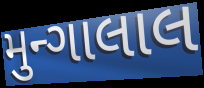
મુન્ગાલાલ